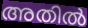
അതിൽ